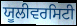
ਯੂਲੀਵਰਸਿਟੀ